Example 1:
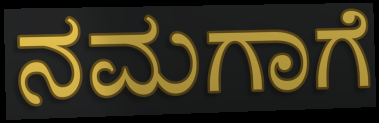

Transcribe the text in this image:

ನಮಗಾಗೆ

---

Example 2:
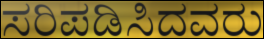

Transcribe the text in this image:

ಸರಿಪಡಿಸಿದವರು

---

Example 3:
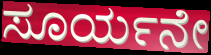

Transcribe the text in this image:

ಸೂರ್ಯನೇ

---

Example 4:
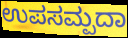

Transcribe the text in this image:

ಉಪಸಮ್ಪದಾ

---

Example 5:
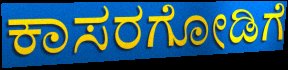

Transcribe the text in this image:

ಕಾಸರಗೋಡಿಗೆ